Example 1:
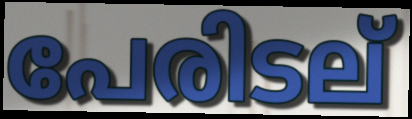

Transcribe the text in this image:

പേരിടല്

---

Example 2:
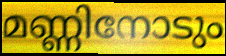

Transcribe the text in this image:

മണ്ണിനോടും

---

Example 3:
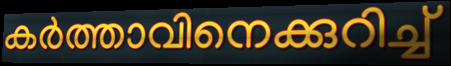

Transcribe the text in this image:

കർത്താവിനെക്കുറിച്ച്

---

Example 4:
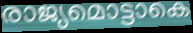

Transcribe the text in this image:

രാജ്യമൊട്ടാകെ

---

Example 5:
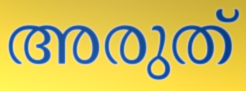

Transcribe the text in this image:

അരുത്